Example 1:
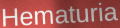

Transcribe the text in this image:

Hematuria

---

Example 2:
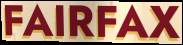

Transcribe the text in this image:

FAIRFAX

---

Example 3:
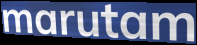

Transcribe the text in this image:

marutam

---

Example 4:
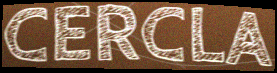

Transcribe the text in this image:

CERCLA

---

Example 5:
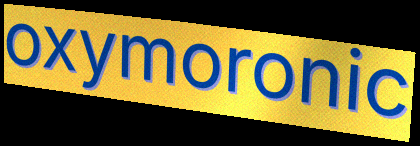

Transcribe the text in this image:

oxymoronic